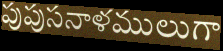
పుపుసనాళములుగా